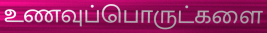
உணவுப்பொருட்களை